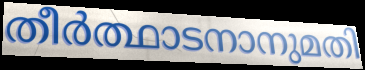
തീർത്ഥാടനാനുമതി